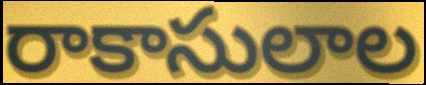
రాకాసులాల